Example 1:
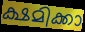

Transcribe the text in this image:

ക്ഷമിക്കാ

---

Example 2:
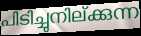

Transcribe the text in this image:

പിടിച്ചുനില്ക്കുന്ന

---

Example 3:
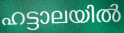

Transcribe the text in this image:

ഹട്ടാലയിൽ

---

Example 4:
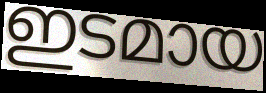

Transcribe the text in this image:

ഇടമായ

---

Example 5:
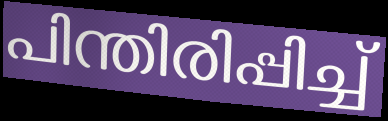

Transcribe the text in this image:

പിന്തിരിപ്പിച്ച്